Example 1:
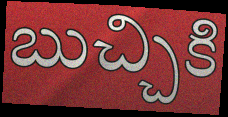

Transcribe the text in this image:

బుచ్చికి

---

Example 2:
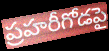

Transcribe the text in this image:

ప్రహరీగోడపై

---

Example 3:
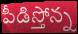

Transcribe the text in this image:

పీడిస్తోన్న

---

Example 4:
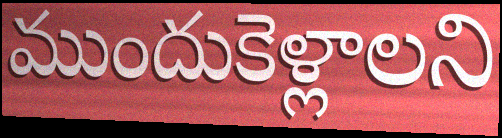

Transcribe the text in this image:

ముందుకెళ్లాలని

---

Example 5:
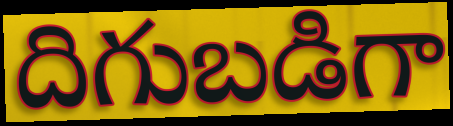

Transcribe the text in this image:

దిగుబడిగా